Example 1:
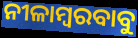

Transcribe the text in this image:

ନୀଳାମ୍ବରବାବୁ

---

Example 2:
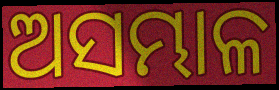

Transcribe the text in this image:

ଅସମ୍ଭାଳ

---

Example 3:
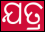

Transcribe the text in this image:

ଯତ୍ର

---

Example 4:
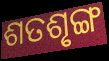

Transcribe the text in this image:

ଶତଶୃଙ୍ଗ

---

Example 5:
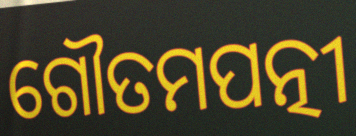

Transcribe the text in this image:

ଗୌତମପତ୍ନୀ